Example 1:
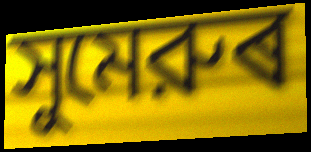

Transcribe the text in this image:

সুমেৰুৰ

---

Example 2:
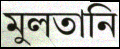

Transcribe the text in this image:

মুলতানি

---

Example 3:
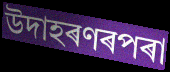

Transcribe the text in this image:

উদাহৰণৰপৰা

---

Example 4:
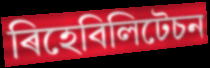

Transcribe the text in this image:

ৰিহেবিলিটেচন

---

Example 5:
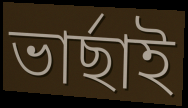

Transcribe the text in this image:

ভাৰ্ছাই